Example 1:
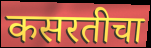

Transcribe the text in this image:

कसरतीचा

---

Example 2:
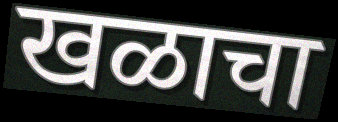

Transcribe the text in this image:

खळाचा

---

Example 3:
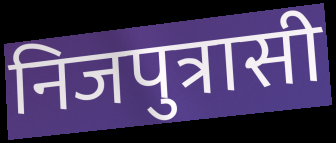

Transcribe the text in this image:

निजपुत्रासी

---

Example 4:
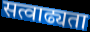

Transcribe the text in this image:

सत्वाढ्यता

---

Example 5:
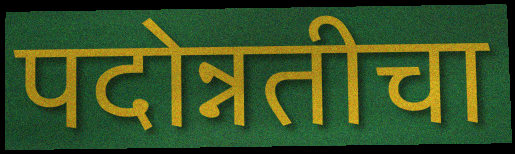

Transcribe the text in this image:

पदोन्नतीचा